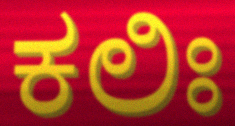
ಕಲಿಃ